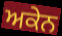
ਅਕੇਨ